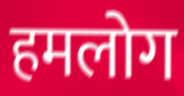
हमलोग